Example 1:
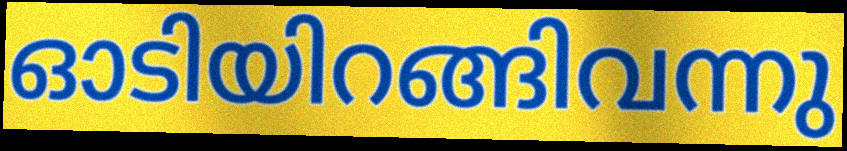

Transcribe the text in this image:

ഓടിയിറങ്ങിവന്നു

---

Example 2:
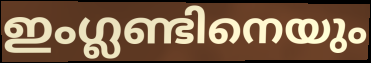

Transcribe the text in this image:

ഇംഗ്ലണ്ടിനെയും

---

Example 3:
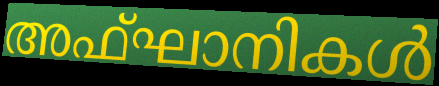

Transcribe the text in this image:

അഫ്ഘാനികൾ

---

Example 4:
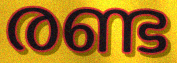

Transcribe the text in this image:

രണ്ട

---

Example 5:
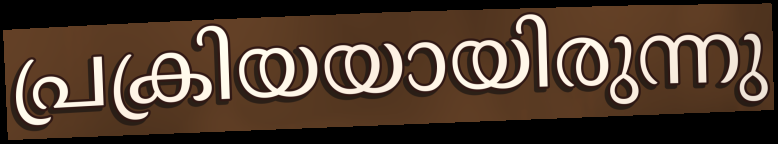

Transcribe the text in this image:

പ്രക്രിയയായിരുന്നു